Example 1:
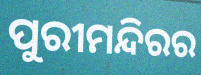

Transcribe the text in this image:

ପୁରୀମନ୍ଦିରର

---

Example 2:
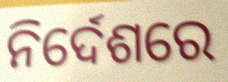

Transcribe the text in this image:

ନିର୍ଦେଶରେ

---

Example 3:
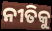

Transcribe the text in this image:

ନୀତିକୁ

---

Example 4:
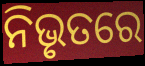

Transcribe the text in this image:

ନିଭୃତରେ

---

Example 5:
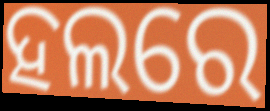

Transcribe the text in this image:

ହଲରେ